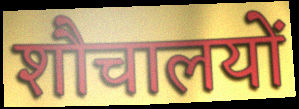
शौचालयों